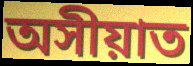
অসীয়াত